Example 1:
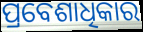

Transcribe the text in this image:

ପ୍ରବେଶାଧିକାର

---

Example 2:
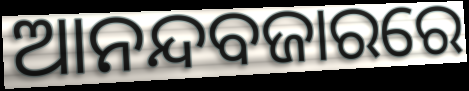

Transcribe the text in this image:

ଆନନ୍ଦବଜାରରେ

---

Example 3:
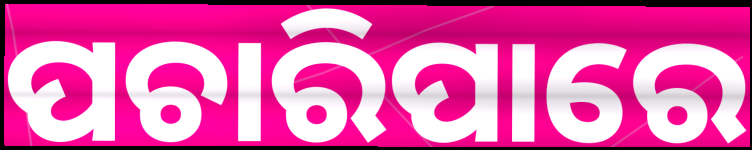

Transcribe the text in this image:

ପଚାରିପାରେ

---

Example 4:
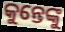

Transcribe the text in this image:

କୁନ୍ତେଙ୍କୁ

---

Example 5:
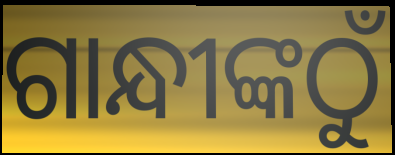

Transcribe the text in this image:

ଗାନ୍ଧୀଙ୍କଠୁଁ